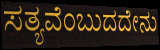
ಸತ್ಯವೆಂಬುದದೇನು